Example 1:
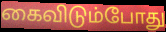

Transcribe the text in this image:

கைவிடும்போது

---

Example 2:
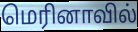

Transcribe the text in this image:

மெரினாவில்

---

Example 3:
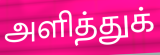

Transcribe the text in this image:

அளித்துக்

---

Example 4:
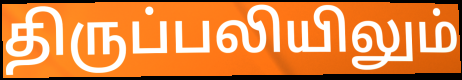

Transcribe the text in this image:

திருப்பலியிலும்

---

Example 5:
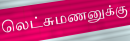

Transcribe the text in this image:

லெட்சுமணனுக்கு